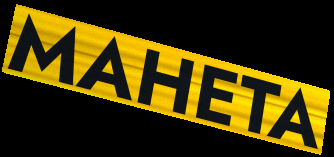
MAHETA